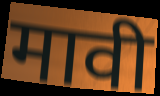
मावी